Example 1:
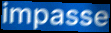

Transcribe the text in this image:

impasse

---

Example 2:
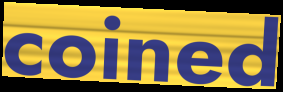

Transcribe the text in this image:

coined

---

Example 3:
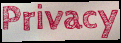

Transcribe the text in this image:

Privacy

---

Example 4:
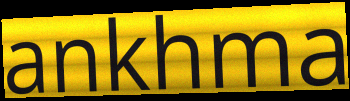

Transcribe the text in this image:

ankhma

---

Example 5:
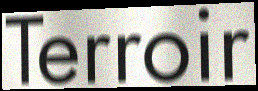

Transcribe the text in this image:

Terroir